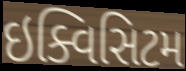
ઇક્વિસિટમ